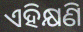
ଏହିକ୍ଷଣି